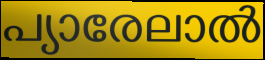
പ്യാരേലാൽ